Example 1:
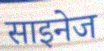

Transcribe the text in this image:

साइनेज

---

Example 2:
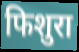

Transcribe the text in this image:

फिशुरा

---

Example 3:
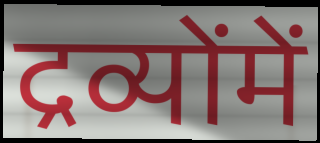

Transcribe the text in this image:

द्रव्योंमें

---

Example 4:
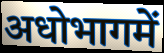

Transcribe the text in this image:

अधोभागमें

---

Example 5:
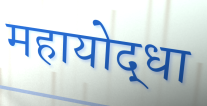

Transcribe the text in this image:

महायोद्धा